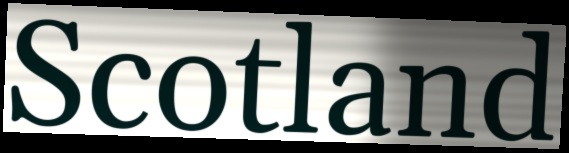
Scotland